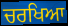
ਚਰਖਿਆ